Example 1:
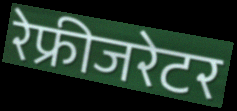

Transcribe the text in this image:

रेफ्रीजरेटर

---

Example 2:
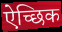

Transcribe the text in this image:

ऐच्छिक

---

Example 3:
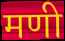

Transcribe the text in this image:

मणी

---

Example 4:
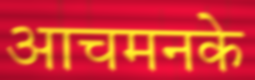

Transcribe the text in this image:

आचमनके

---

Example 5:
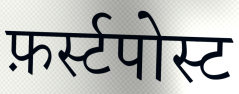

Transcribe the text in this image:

फ़र्स्टपोस्ट